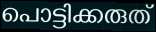
പൊട്ടിക്കരുത്